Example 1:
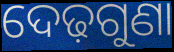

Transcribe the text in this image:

ଦେଢ଼ଗୁଣା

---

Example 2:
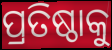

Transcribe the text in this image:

ପ୍ରତିଷ୍ଠାକୁ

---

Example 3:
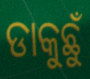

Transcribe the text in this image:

ଡାକୁଛୁଁ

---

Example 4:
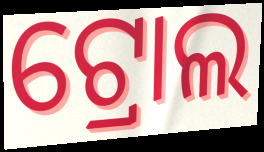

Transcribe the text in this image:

ଟ୍ରୋଲ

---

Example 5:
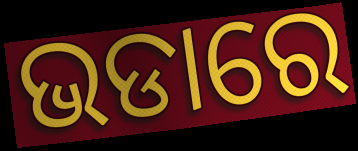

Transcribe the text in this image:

ଭଡାରେ